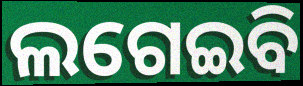
ଲଗେଇବି